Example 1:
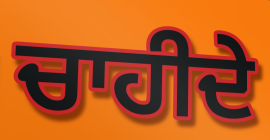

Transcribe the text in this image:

ਚਾਹੀਦੇ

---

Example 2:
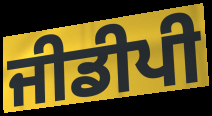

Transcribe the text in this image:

ਜੀਡੀਪੀ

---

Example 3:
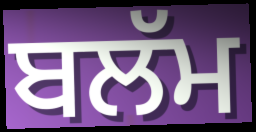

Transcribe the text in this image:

ਬਲੱਮ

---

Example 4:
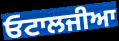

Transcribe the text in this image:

ਓਟਾਲਜੀਆ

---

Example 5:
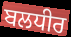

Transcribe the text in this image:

ਬਲਧੀਰ